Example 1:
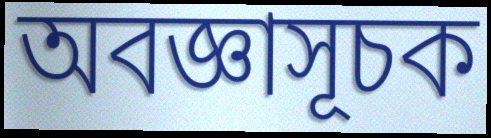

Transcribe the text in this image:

অবজ্ঞাসূচক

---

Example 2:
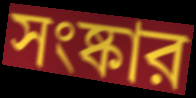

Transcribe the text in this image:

সংষ্কার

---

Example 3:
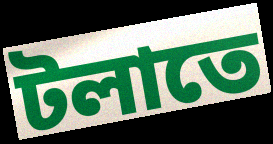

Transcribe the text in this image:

টলাতে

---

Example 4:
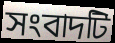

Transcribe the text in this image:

সংবাদটি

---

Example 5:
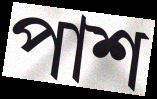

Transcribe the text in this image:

পাশ